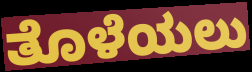
ತೊಳೆಯಲು